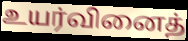
உயர்வினைத்